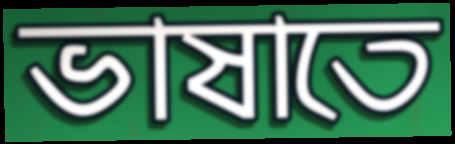
ভাষাতে